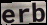
erb